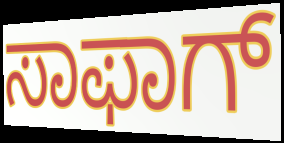
ಸಾಫಾಗ್